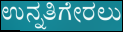
ಉನ್ನತಿಗೇರಲು